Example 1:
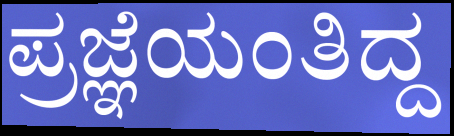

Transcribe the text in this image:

ಪ್ರಜ್ಞೆಯಂತಿದ್ದ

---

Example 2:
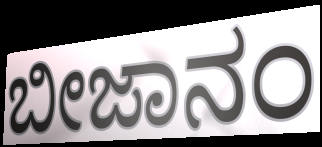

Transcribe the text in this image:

ಬೀಜಾನಂ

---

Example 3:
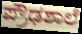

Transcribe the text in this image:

ಪ್ರೌಢಶಾಲೆ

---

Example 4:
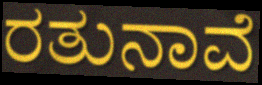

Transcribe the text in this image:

ರತುನಾವೆ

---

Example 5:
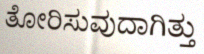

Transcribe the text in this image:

ತೋರಿಸುವುದಾಗಿತ್ತು